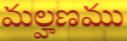
మల్హణము